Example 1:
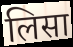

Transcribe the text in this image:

लिसा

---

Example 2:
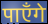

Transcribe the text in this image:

पाऍंगे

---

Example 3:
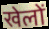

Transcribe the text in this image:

खेलों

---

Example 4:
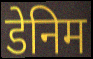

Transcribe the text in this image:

डेनिम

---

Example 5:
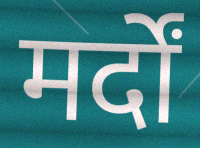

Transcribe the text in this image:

मर्दों